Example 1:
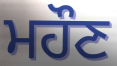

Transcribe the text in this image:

ਮਹੌਣ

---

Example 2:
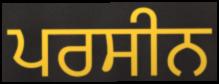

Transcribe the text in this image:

ਪਰਸੀਨ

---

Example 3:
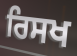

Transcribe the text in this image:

ਰਿਸਖ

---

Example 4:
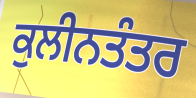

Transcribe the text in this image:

ਕੁਲੀਨਤੰਤਰ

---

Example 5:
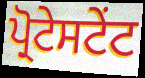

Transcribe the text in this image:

ਪ੍ਰੋਟੇਸਟੇਂਟ